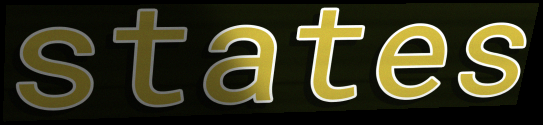
states